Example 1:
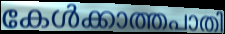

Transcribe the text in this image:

കേൾക്കാത്തപാതി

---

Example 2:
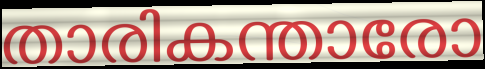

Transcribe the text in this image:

താരികന്താരോ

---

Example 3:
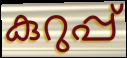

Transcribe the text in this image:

കുറുപ്പ്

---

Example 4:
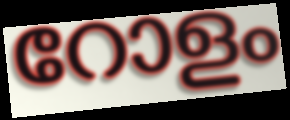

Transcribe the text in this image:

റോളം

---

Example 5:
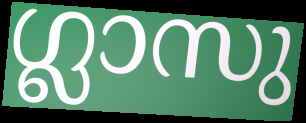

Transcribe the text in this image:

ഗ്ലാസു